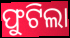
ଫୁଟିଲା